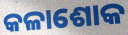
କଳାଶୋକ